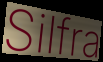
Silfra